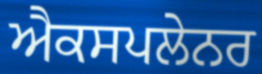
ਐਕਸਪਲੇਨਰ